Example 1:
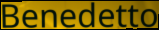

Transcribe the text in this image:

Benedetto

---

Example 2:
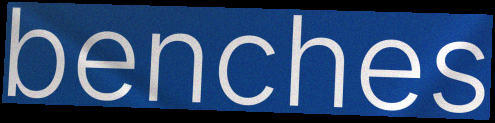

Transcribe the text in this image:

benches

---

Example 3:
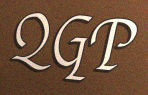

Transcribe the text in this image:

QGP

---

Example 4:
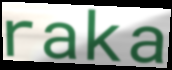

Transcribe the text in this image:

raka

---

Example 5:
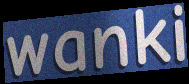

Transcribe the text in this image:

wanki